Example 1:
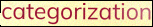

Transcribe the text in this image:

categorization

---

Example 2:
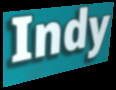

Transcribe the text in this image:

Indy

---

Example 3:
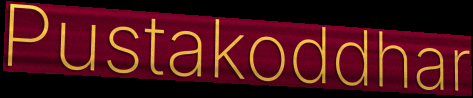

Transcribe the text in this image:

Pustakoddhar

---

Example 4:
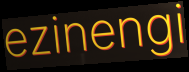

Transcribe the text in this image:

ezinengi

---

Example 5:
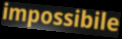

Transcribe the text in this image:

impossibile